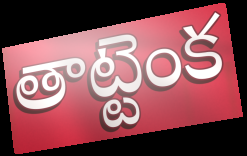
తాట్టెంక